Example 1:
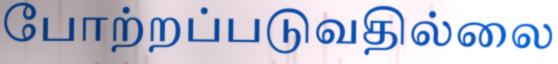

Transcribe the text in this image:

போற்றப்படுவதில்லை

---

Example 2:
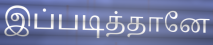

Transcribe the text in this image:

இப்படித்தானே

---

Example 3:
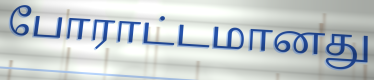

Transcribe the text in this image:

போராட்டமானது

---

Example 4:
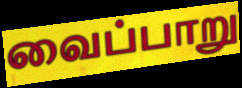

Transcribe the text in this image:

வைப்பாறு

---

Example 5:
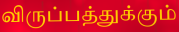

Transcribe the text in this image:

விருப்பத்துக்கும்